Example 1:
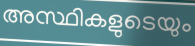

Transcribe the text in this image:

അസ്ഥികളുടെയും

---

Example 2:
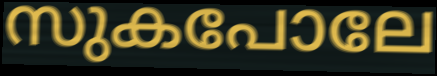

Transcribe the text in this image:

സുകപോലേ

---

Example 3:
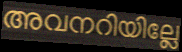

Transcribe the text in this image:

അവനറിയില്ലേ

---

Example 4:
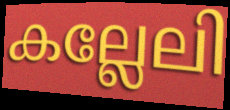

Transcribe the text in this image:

കല്ലേലി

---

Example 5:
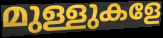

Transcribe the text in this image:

മുള്ളുകളേ